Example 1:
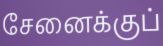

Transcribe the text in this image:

சேனைக்குப்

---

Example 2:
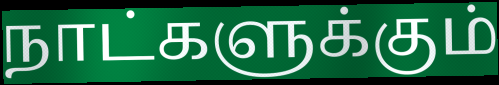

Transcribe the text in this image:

நாட்களுக்கும்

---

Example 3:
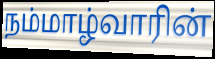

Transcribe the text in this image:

நம்மாழ்வாரின்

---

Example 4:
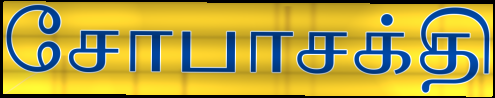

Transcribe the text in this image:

சோபாசக்தி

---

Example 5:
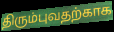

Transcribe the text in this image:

திரும்புவதற்காக